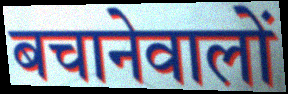
बचानेवालों